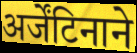
अर्जेंटिनाने